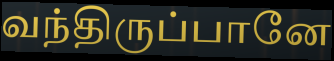
வந்திருப்பானே